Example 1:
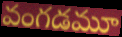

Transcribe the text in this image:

వంగడమూ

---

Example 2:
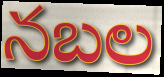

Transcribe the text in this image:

నబల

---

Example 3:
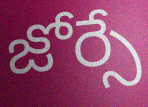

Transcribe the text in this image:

జోర్సే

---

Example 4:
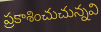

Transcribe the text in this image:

ప్రకాశించుచున్నవి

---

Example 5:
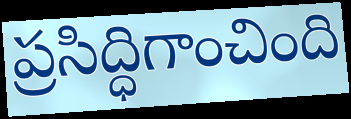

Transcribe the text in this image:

ప్రసిద్ధిగాంచింది